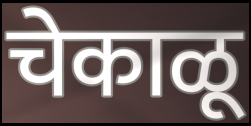
चेकाळू